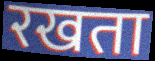
रखता